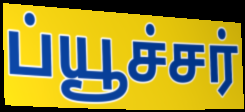
ப்யூச்சர்